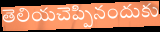
తెలియచెప్పినందుకు